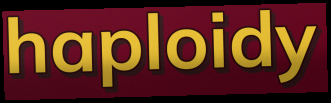
haploidy